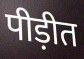
पीड़ीत